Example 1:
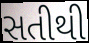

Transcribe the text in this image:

સતીથી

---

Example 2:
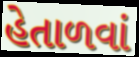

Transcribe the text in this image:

હેતાળવાં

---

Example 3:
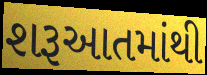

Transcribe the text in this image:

શરૂઆતમાંથી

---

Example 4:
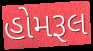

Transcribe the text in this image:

હોમરૂલ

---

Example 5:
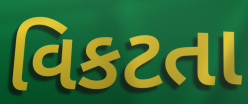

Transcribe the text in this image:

વિકટતા